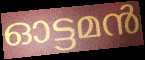
ഓട്ടമൻ